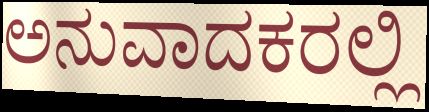
ಅನುವಾದಕರಲ್ಲಿ